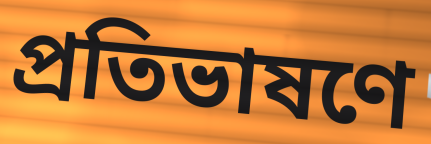
প্রতিভাষণে